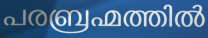
പരബ്രഹ്മത്തിൽ